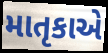
માતૃકાએ